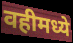
वहीमध्ये